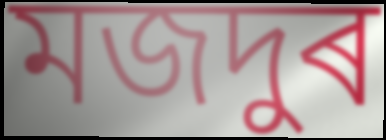
মজদুৰ